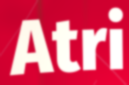
Atri